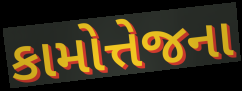
કામોત્તેજના